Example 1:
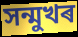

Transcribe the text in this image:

সন্মুখৰ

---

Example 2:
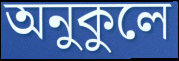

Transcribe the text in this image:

অনুকুলে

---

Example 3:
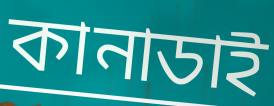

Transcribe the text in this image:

কানাডাই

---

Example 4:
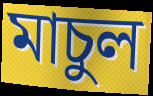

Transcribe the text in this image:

মাচুল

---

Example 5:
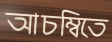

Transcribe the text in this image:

আচম্বিতে